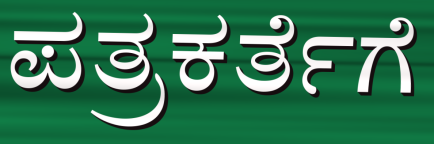
ಪತ್ರಕರ್ತೆಗೆ